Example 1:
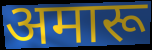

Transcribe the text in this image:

अमारू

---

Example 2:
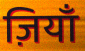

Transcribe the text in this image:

ज़ियाँ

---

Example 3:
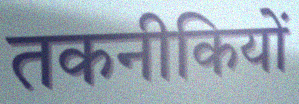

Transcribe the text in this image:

तकनीकियों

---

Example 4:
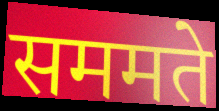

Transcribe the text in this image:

सममते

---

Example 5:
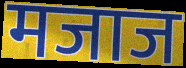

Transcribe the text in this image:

मजाज